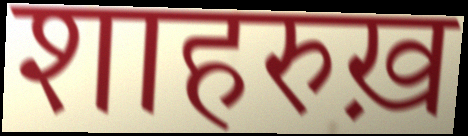
शाहरुख़